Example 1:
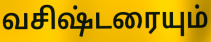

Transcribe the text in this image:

வசிஷ்டரையும்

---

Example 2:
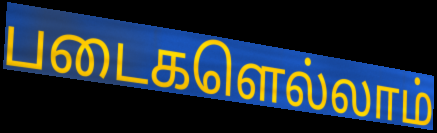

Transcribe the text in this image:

படைகளெல்லாம்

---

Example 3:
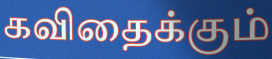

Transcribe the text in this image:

கவிதைக்கும்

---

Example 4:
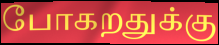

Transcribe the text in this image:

போகறதுக்கு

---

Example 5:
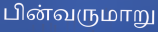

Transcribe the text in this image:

பின்வருமாறு